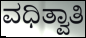
ವಧಿತ್ವಾತಿ